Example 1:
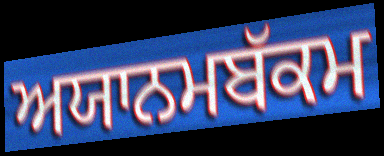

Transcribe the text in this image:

ਅਯਾਨਮਬੱਕਮ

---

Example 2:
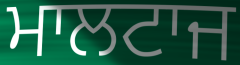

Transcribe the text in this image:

ਮਾਲਟਾਜ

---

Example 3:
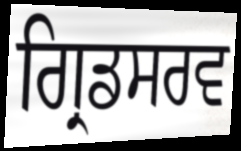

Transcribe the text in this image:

ਗ੍ਰਿਡਸਰਵ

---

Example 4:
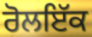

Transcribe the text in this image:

ਰੋਲਇੱਕ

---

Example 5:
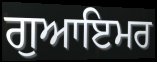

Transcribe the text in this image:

ਗੁਆਇਮਰ